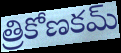
త్రికోణకమ్